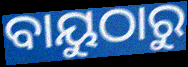
ବାୟୁଠାରୁ